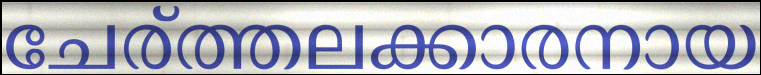
ചേര്ത്തലക്കാരനായ